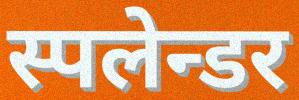
स्पलेन्डर